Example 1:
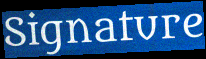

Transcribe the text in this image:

Signature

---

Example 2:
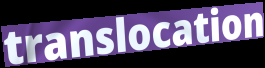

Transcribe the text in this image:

translocation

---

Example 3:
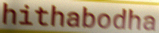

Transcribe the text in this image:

hithabodha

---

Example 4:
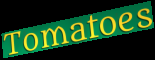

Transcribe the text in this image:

Tomatoes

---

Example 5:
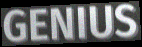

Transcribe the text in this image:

GENIUS